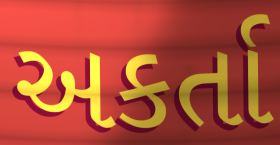
અકર્તા